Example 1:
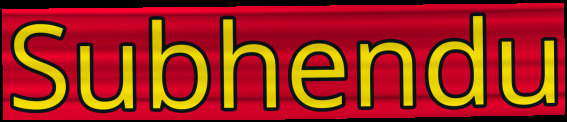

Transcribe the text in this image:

Subhendu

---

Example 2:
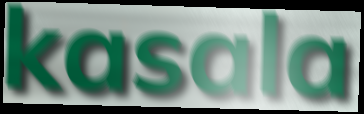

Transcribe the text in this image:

kasala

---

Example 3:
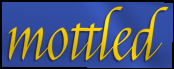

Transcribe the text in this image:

mottled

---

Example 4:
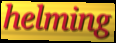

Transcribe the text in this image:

helming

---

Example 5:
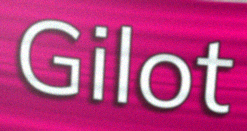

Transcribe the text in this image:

Gilot